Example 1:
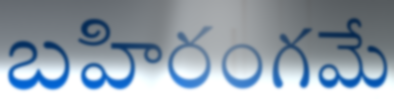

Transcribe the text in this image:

బహిరంగమే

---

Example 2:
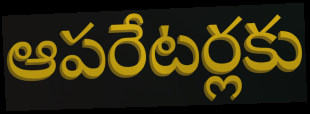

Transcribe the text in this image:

ఆపరేటర్లకు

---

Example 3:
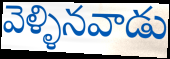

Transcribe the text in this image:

వెళ్ళినవాడు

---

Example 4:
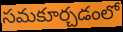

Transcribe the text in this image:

సమకూర్చడంలో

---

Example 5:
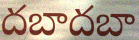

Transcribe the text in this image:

దబాదబా